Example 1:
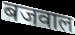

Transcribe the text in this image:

बजवाल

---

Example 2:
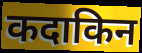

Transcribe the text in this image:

कदाकिन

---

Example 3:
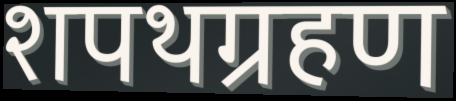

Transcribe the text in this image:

शपथग्रहण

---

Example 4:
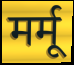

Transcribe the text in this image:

मर्मू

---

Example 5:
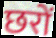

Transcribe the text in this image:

छरों